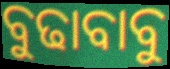
ବୁଢାବାବୁ